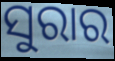
ସୁରାର